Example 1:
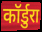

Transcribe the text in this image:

कॉर्डुरा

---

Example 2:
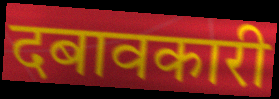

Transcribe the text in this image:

दबावकारी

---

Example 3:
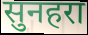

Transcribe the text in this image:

सुनहरा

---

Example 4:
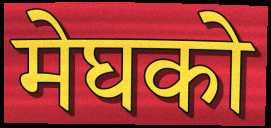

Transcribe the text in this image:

मेघको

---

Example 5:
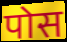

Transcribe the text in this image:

पोस